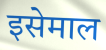
इसेमाल